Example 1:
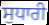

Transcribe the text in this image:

ਸੁਧਾਰੀ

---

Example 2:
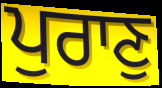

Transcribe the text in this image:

ਪੁਰਾਣੁ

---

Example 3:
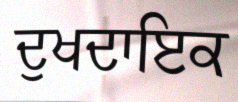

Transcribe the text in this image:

ਦੁਖਦਾਇਕ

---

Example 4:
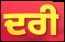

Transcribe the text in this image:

ਦਰੀ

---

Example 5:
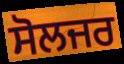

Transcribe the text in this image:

ਸੋਲਜਰ